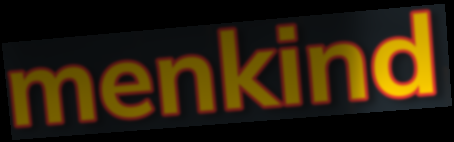
menkind